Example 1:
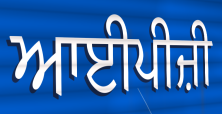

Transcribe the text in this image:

ਆਈਪੀਜ਼ੀ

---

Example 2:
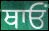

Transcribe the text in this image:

ਥਾਓਂ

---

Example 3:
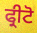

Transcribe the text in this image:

ਫ੍ਰੀਟੋ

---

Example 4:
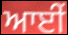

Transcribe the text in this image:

ਆਈਂ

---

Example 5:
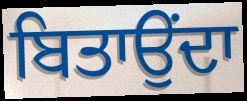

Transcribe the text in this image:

ਬਿਤਾਉਂਦਾ